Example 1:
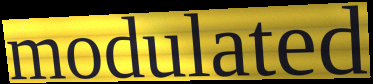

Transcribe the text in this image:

modulated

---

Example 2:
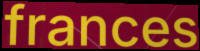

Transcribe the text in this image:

frances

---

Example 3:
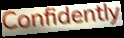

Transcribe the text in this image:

Confidently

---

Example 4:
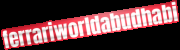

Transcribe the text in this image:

ferrariworldabudhabi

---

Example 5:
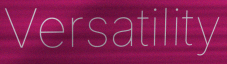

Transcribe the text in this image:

Versatility